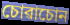
চোৱাচোন